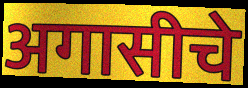
अगासीचे